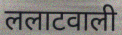
ललाटवाली